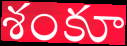
శంకూ